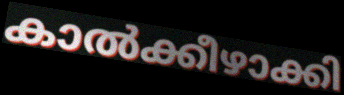
കാൽക്കീഴാക്കി